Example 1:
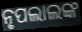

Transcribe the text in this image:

ନୃପଲାଲଙ୍କ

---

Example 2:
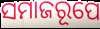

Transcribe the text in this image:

ସମାଜରୂପେ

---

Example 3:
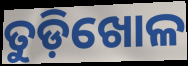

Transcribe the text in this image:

ତୁଡ଼ିଖୋଳ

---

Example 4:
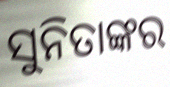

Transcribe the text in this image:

ସୁନିତାଙ୍କର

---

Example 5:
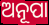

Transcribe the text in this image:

ଅନୂପା